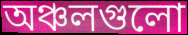
অঞ্চলগুলো